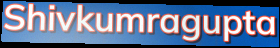
Shivkumragupta